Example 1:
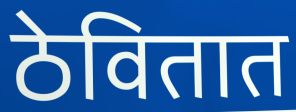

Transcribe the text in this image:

ठेवितात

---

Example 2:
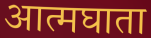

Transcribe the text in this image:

आत्मघाता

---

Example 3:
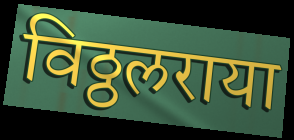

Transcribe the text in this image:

विठ्ठलराया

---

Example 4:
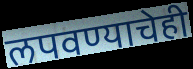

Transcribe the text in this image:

लपवण्याचेही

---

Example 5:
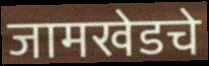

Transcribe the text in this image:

जामखेडचे